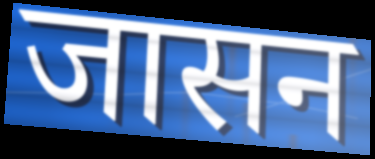
जासन